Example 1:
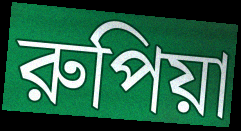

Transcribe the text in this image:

রুপিয়া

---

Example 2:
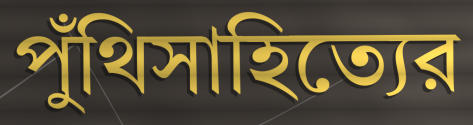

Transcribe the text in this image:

পুঁথিসাহিত্যের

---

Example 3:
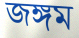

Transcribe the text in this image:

জঙ্গম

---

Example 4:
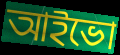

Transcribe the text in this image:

আইভো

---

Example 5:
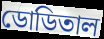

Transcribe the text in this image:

ডোডিতাল